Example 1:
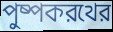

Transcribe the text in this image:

পুষ্পকরথের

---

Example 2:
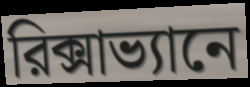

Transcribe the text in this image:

রিক্সাভ্যানে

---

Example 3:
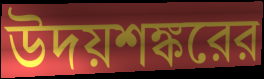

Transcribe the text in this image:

উদয়শঙ্করের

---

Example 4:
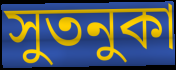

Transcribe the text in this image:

সুতনুকা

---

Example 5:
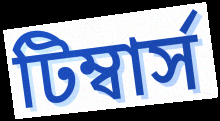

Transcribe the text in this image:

টিম্বার্স